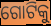
ଗୋଟିକୁ